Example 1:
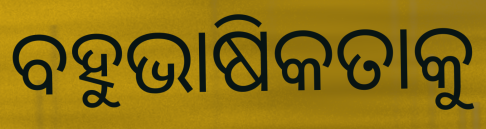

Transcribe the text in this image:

ବହୁଭାଷିକତାକୁ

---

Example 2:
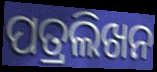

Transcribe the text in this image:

ପତ୍ରଲିଖନ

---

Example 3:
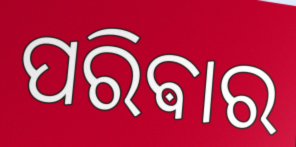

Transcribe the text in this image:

ପରିଵାର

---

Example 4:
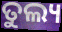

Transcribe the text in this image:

ତୁଲ୍ୟ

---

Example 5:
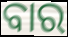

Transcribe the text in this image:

ବାର